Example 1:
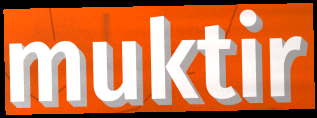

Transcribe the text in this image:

muktir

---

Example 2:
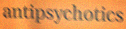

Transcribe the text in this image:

antipsychotics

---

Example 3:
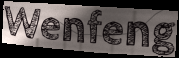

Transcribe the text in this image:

Wenfeng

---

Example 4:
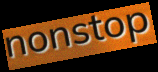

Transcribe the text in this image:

nonstop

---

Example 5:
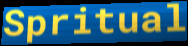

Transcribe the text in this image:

Spritual